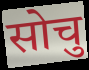
सोचु